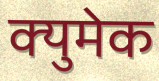
क्युमेक